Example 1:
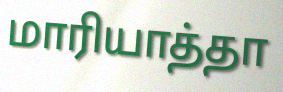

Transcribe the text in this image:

மாரியாத்தா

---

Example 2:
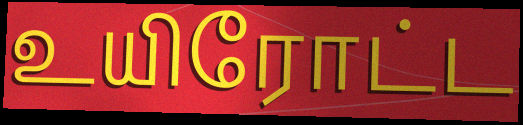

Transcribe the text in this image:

உயிரோட்ட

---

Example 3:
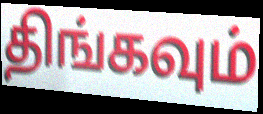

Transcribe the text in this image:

திங்கவும்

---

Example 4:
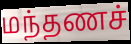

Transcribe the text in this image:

மந்தணச்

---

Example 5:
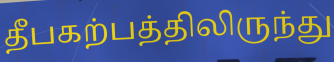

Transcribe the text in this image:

தீபகற்பத்திலிருந்து